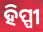
ହିପ୍ପୀ